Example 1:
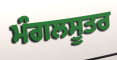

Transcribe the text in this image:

ਮੰਗਲਸੂਤਰ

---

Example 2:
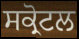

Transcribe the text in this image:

ਸਕ੍ਰੋਟਲ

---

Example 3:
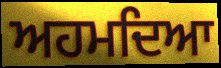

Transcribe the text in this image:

ਅਹਮਦਿਆ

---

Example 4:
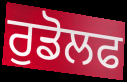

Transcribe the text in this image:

ਰੁਡੋਲਫ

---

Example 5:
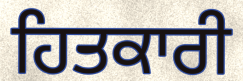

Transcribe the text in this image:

ਹਿਤਕਾਰੀ